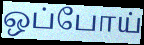
ஒப்போய்